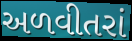
અળવીતરાં